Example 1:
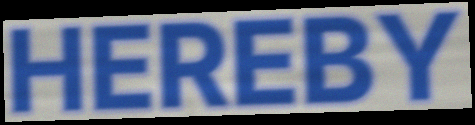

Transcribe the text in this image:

HEREBY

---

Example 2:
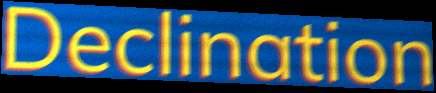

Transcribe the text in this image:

Declination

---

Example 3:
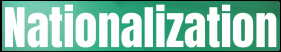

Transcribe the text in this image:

Nationalization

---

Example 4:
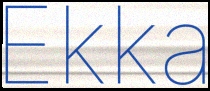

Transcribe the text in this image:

Ekka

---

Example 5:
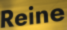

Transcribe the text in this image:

Reine